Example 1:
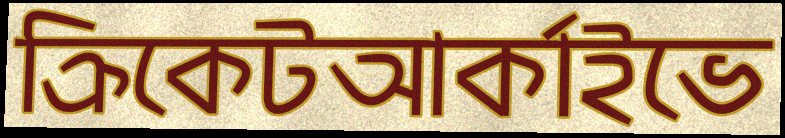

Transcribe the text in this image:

ক্রিকেটআর্কাইভে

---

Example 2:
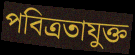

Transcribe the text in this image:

পবিত্রতাযুক্ত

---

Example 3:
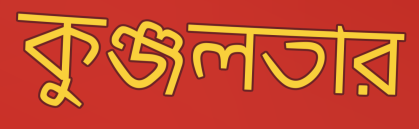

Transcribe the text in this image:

কুঞ্জলতার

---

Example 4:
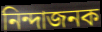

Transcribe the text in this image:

নিন্দাজনক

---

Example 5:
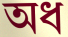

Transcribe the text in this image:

অধ